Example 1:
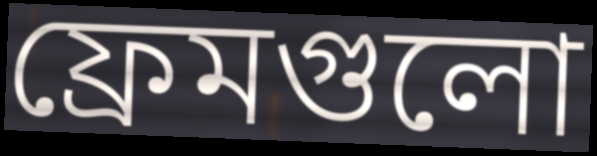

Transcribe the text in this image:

ফ্রেমগুলো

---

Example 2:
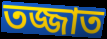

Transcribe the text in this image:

তজ্জাত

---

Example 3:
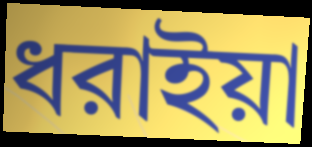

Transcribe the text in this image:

ধরাইয়া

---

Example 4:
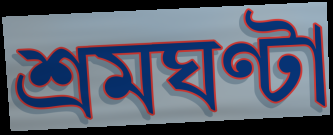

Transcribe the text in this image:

শ্রমঘণ্টা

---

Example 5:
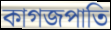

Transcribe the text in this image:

কাগজপাতি